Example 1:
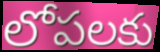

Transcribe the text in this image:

లోపలకు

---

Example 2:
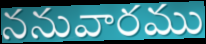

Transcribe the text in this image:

ననువారము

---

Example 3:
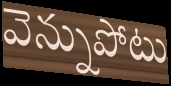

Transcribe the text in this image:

వెన్నుపోటు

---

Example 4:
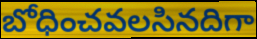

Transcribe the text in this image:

బోధించవలసినదిగా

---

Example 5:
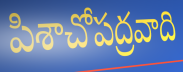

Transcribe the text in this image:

పిశాచోపద్రవాది